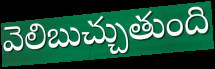
వెలిబుచ్చుతుంది